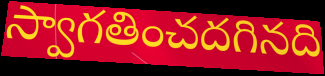
స్వాగతించదగినది